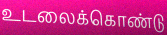
உடலைக்கொண்டு